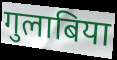
गुलाबिया